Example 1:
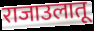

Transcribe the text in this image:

राजाउलातू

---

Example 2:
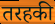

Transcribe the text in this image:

तरहकी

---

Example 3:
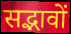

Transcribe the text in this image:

सद्भावों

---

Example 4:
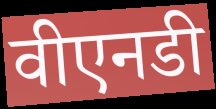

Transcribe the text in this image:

वीएनडी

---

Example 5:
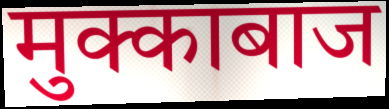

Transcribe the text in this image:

मुक्काबाज